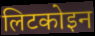
लिटकोइन